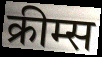
क्रीम्‍स